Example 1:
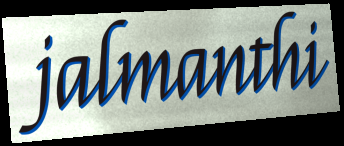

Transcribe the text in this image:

jalmanthi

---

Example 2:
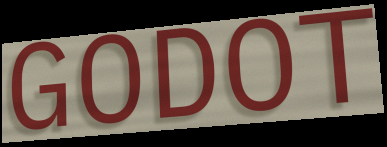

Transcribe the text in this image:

GODOT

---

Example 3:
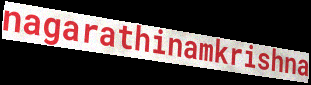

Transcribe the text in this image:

nagarathinamkrishna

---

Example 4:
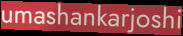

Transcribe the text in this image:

umashankarjoshi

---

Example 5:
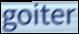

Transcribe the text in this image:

goiter